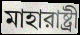
মাহারাষ্ট্রী